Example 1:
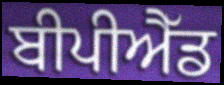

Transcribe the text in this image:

ਬੀਪੀਐੱਡ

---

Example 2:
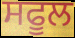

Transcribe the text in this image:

ਸਫੂਲ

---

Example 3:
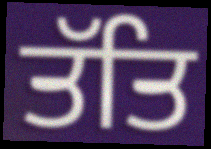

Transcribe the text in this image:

ਤੱਤਿ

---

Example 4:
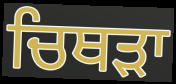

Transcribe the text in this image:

ਚਿਥੜਾ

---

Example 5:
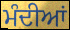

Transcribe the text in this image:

ਮੰਦੀਆਂ